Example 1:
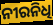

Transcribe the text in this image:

ନୀରନିଧି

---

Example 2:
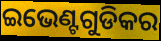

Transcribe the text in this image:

ଇଭେଣ୍ଟଗୁଡିକର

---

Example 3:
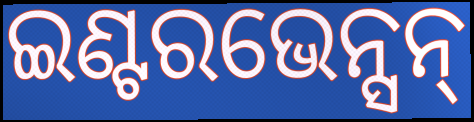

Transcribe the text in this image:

ଇଣ୍ଟରଭେନ୍ସନ୍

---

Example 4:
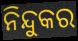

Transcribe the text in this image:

ନିନ୍ଦୁକର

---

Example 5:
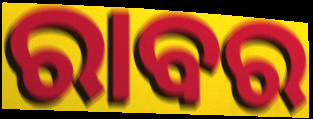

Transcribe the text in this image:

ରାବର